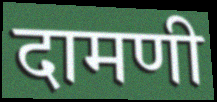
दामणी